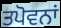
ਤਪੋਵਨਾਂ